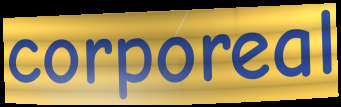
corporeal